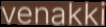
venakki